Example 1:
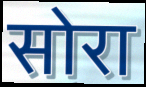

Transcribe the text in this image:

सोरा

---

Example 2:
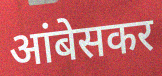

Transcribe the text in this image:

आंबेसकर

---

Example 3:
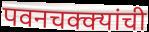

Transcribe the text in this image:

पवनचक्क्यांची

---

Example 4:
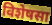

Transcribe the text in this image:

विशेषसा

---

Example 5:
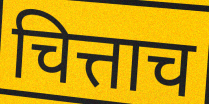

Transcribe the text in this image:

चित्ताच